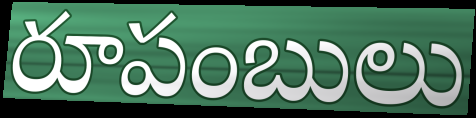
రూపంబులు